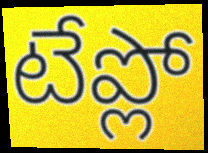
టేప్లో